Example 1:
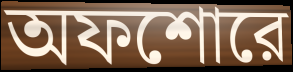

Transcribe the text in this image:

অফশোরে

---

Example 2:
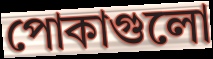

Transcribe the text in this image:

পোকাগুলো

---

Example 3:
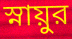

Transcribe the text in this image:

স্নায়ুর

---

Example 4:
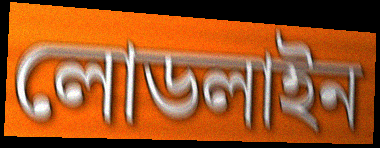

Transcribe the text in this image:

লোডলাইন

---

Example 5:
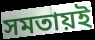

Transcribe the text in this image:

সমতায়ই